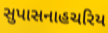
સુપાસનાહચરિય